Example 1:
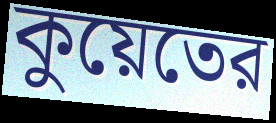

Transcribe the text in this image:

কুয়েতের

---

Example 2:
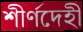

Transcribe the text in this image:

শীর্ণদেহী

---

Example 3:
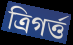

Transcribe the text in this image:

ত্রিগর্ত্ত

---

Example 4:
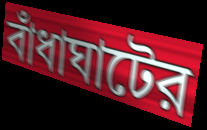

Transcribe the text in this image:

বাঁধাঘাটের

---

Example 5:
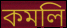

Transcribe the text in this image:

কমলি